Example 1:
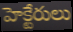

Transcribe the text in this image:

హెక్టేరులు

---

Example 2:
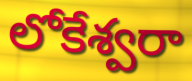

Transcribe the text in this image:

లోకేశ్వరా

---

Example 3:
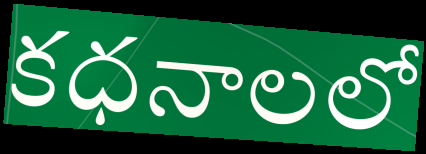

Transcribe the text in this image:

కధనాలలో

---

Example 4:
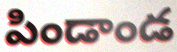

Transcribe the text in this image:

పిండాండ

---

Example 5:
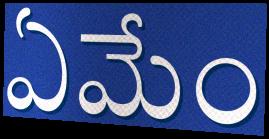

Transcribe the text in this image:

ఏమేం